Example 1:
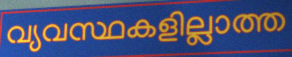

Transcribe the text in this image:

വ്യവസ്ഥകളില്ലാത്ത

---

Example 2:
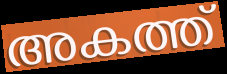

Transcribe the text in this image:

അകത്ത്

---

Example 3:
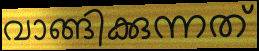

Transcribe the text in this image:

വാങ്ങിക്കുന്നത്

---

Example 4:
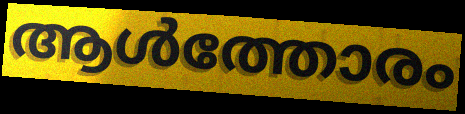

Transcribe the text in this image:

ആൾത്തോരം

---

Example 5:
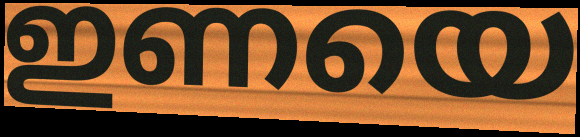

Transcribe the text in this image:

ഇണയെ